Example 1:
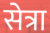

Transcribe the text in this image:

सेत्रा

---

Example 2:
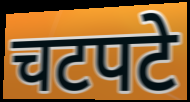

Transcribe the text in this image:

चटपटे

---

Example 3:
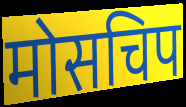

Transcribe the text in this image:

मोसचिप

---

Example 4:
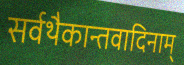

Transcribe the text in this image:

सर्वथैकान्तवादिनाम्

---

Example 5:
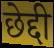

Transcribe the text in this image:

छेद्दी